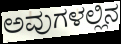
ಅವುಗಳಲ್ಲಿನ